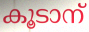
കൂടാന്